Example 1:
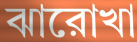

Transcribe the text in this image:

ঝারোখা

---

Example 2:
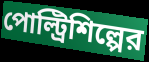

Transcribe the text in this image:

পোল্ট্রিশিল্পের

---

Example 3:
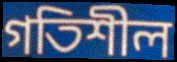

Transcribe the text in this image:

গতিশীল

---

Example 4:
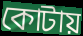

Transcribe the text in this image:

কোটায়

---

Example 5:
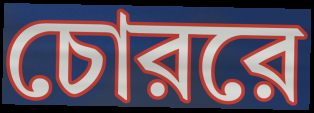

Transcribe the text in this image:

চোররে